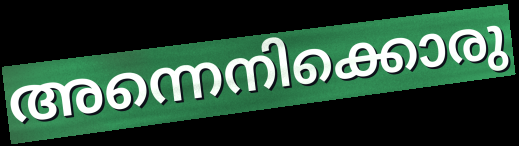
അന്നെനിക്കൊരു